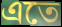
এতে